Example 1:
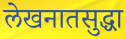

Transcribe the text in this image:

लेखनातसुद्धा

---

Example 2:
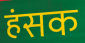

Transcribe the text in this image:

हंसक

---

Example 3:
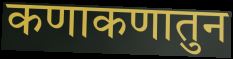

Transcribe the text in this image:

कणाकणातुन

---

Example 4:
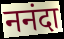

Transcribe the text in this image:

ननंदा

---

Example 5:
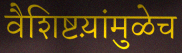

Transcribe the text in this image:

वैशिष्टय़ांमुळेच